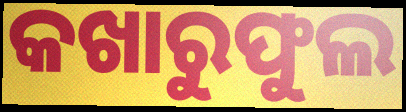
କଖାରୁଫୁଲ